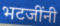
भटजींनी